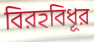
বিরহবিধূর